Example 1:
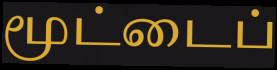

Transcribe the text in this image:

மூட்டைப்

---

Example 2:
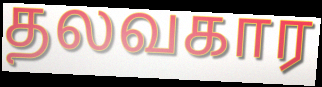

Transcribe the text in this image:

தலவகார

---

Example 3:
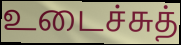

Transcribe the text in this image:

உடைச்சுத்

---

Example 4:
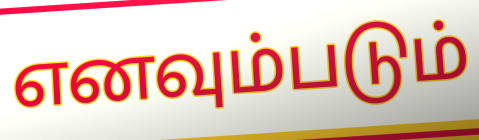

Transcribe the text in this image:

எனவும்படும்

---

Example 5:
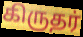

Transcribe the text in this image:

கிருதர்